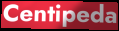
Centipeda